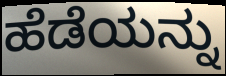
ಹೆಡೆಯನ್ನು